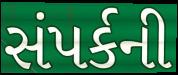
સંપર્કની